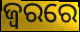
ଜ୍ବରରେ